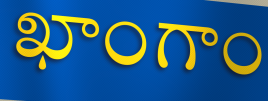
ఖాంగాం